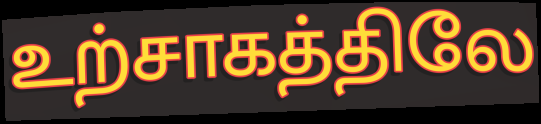
உற்சாகத்திலே